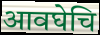
आवघेचि